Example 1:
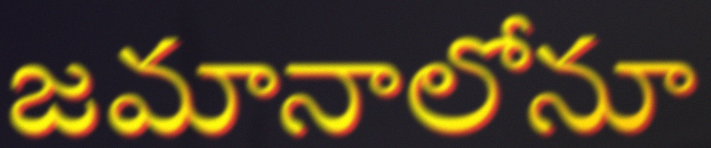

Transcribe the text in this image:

జమానాలోనూ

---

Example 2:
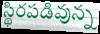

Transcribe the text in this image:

స్థిరపడివున్న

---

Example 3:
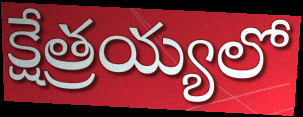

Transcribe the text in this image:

క్షేత్రయ్యలో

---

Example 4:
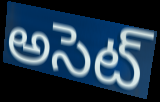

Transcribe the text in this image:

అసెట్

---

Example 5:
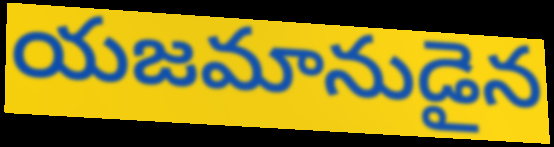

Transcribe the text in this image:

యజమానుడైన